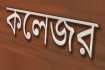
কলেজর